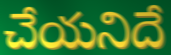
చేయనిదే